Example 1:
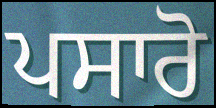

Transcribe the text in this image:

ਪਸਾਰੋ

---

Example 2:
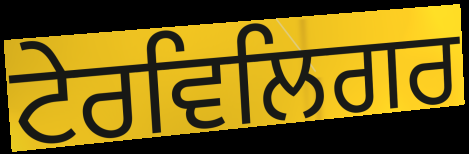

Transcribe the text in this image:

ਟੇਰਵਿਲਿਗਰ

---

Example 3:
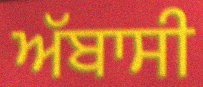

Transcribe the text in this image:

ਅੱਬਾਸੀ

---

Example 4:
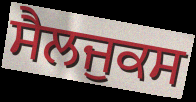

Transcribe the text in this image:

ਸੈਲਜੁਕਸ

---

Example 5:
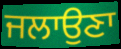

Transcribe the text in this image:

ਜਲਾਉਣਾ